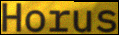
Horus